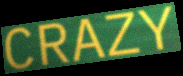
CRAZY